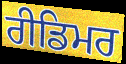
ਰੀਡਿਮਰ